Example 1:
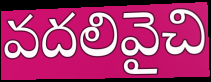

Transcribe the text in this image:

వదలివైచి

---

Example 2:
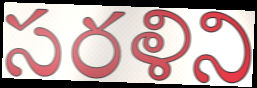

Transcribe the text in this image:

సరళిని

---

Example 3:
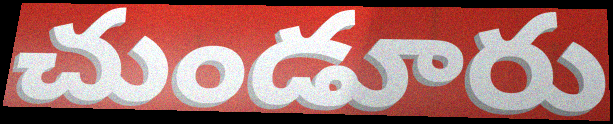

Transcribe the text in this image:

చుండూరు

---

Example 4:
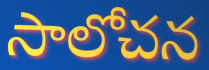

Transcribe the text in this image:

సాలోచన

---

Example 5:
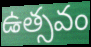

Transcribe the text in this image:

ఉత్సవం